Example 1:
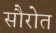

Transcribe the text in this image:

सौरोत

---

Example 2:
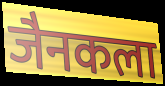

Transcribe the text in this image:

जैनकला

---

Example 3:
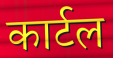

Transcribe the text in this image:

कार्टल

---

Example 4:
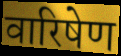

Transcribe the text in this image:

वारिषेण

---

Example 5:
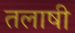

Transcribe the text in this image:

तलाषी